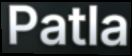
Patla